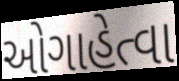
ઓગાહેત્વા